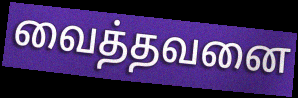
வைத்தவனை